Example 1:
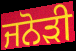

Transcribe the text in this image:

ਜਨੋੜੀ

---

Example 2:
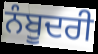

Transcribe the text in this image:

ਨੰਬੂਦਰੀ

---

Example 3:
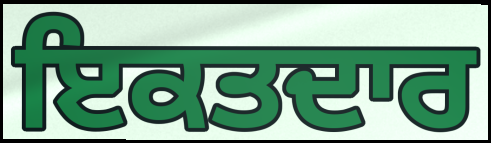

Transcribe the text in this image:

ਇਕਤਦਾਰ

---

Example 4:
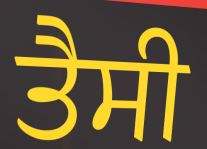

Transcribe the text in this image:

ਤੈਸੀ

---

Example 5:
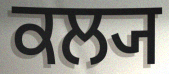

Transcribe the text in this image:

ਕਲ੍ਯ